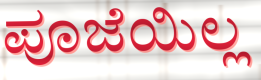
ಪೂಜೆಯಿಲ್ಲ